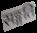
सङ्गति